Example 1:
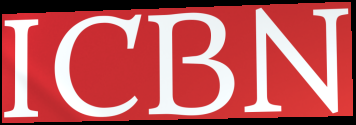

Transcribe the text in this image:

ICBN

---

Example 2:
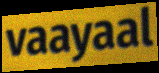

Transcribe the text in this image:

vaayaal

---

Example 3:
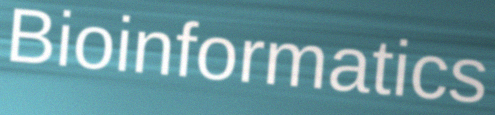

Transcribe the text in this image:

Bioinformatics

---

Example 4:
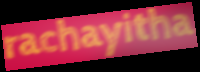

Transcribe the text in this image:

rachayitha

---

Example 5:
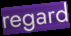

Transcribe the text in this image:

regard